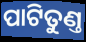
ପାଟିତୁଣ୍ତ